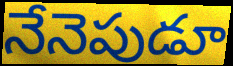
నేనెపుడూ